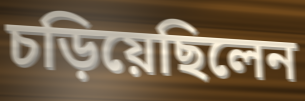
চড়িয়েছিলেন